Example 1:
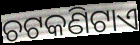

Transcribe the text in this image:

ଚଟକଣିଟାଏ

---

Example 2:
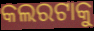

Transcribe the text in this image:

କଲରଟାକୁ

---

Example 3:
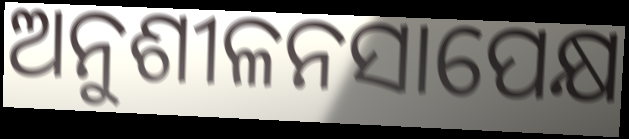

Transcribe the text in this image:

ଅନୁଶୀଳନସାପେକ୍ଷ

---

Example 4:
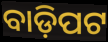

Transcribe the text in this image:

ବାଡ଼ିପଟ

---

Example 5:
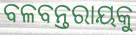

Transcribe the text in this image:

ବଳବନ୍ତରାୟକୁ